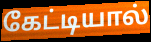
கேட்டியால்